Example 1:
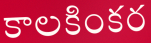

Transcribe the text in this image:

కాలకింకర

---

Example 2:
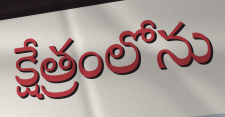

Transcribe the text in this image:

క్షేత్రంలోను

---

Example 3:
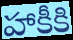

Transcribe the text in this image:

హాకీకి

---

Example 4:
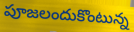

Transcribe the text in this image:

పూజలందుకొంటున్న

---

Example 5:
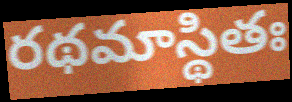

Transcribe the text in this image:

రథమాస్థితః